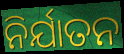
ନିର୍ଯାତନ